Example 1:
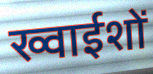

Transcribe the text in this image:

ख्वाईशों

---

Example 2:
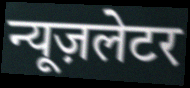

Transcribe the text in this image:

न्यूज़लेटर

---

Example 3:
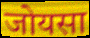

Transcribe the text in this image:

जोयसा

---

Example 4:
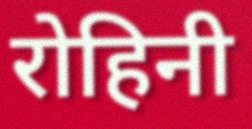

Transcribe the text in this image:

रोहिनी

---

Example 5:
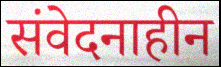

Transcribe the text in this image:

संवेदनाहीन